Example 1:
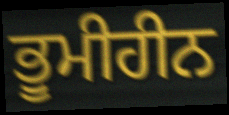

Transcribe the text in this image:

ਭੂਮੀਹੀਨ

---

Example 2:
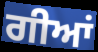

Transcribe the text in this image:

ਗੀਆਂ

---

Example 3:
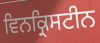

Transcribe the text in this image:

ਵਿਨਕ੍ਰਿਸਟੀਨ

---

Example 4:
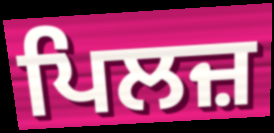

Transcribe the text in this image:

ਪਿਲਜ਼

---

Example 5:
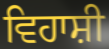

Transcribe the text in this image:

ਵਿਹਾਸ਼ੀ